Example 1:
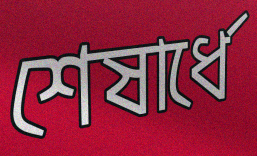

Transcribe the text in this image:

শেষার্ধে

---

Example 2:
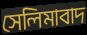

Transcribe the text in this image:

সেলিমাবাদ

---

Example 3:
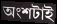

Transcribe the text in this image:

অংশটাই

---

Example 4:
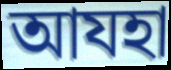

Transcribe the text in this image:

আযহা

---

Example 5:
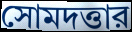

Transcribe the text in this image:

সোমদত্তার